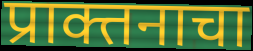
प्राक्तनाचा